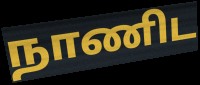
நாணிட